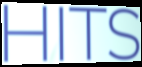
HITS